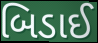
બિડાઈ